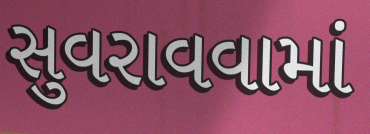
સુવરાવવામાં